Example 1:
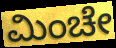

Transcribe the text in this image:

ಮಿಂಚೇ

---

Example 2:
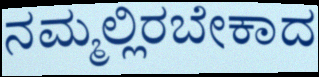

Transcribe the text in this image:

ನಮ್ಮಲ್ಲಿರಬೇಕಾದ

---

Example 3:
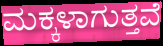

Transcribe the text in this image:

ಮಕ್ಕಳಾಗುತ್ತವೆ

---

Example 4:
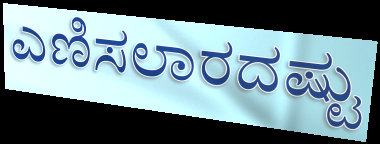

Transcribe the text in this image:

ಎಣಿಸಲಾರದಷ್ಟು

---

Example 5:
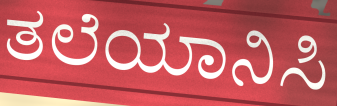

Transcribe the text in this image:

ತಲೆಯಾನಿಸಿ